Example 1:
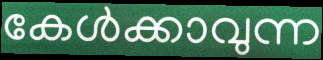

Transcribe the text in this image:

കേൾക്കാവുന്ന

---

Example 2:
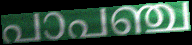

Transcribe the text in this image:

പാപഞ്ച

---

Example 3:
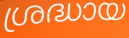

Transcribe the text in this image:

ശ്രദ്ധായ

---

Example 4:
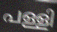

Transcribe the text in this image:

പള്ളി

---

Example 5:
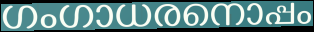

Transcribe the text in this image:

ഗംഗാധരനൊപ്പം